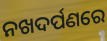
ନଖଦର୍ପଣରେ